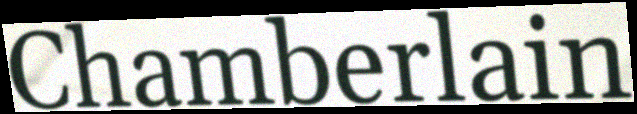
Chamberlain